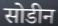
सोडीन